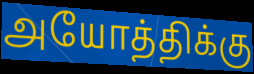
அயோத்திக்கு